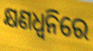
କ୍ଷଣଧ୍ୱନିରେ